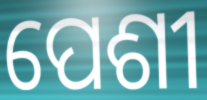
ପେଶୀ